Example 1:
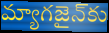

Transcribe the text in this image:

మ్యాగజైన్‌కు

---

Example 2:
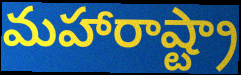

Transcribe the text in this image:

మహారాష్ట్రా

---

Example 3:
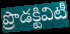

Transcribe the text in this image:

ప్రొడక్టివిటీ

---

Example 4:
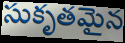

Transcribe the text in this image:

సుకృతమైన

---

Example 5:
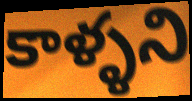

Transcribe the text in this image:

కాళ్ళని